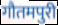
गौतमपुरी